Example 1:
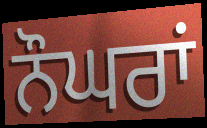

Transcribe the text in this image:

ਨੌਘਰਾਂ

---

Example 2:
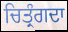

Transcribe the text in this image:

ਚਿਤ੍ਰੰਗਦਾ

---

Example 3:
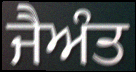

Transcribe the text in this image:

ਜੈਅੰਤ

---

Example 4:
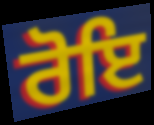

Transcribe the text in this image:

ਰੋਇ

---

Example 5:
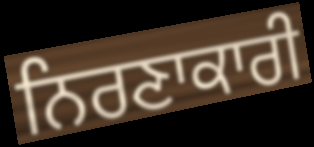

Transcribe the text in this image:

ਨਿਰਣਾਕਾਰੀ